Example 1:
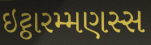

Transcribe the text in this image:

ઇટ્ઠારમ્મણસ્સ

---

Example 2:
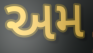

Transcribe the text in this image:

અમ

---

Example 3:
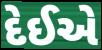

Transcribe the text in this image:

દેઈએ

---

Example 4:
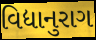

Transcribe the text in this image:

વિદ્યાનુરાગ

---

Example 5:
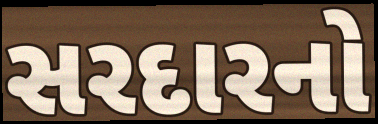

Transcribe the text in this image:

સરદારનો